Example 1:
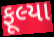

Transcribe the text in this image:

ફૂલ્યા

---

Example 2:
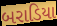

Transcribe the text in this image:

બરાડિયા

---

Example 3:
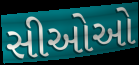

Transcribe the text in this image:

સીઓઓ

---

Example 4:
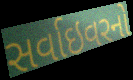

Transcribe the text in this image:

સર્વાઇવરનો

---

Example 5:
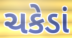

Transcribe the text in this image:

ચકેડાં